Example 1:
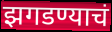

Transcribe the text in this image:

झगडण्याचं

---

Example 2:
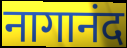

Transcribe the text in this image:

नागानंद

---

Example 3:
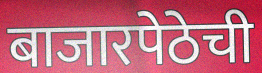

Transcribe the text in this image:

बाजारपेठेची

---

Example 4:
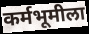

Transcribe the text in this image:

कर्मभूमीला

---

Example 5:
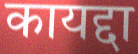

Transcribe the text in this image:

कायद्दा